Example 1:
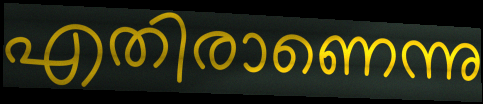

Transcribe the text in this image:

എതിരാണെന്നു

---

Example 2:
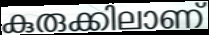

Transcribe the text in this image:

കുരുക്കിലാണ്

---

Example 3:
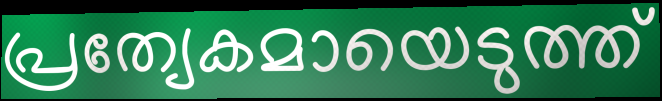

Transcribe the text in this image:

പ്രത്യേകമായെടുത്ത്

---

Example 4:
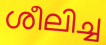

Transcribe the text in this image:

ശീലിച്ച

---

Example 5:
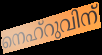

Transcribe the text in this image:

നെഹ്റുവിന്